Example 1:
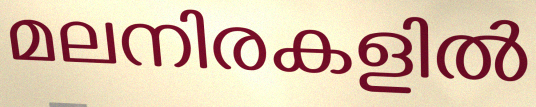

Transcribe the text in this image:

മലനിരകളിൽ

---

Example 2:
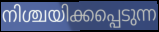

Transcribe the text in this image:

നിശ്ചയിക്കപ്പെടുന്ന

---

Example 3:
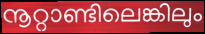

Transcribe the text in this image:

നൂറ്റാണ്ടിലെങ്കിലും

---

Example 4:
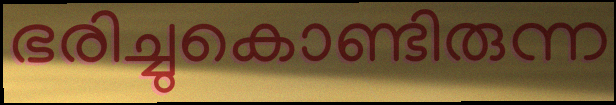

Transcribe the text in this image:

ഭരിച്ചുകൊണ്ടിരുന്ന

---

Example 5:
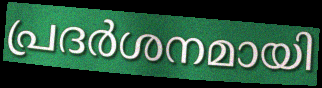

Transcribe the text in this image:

പ്രദർശനമായി